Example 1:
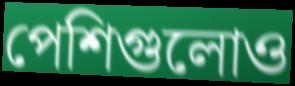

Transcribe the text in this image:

পেশিগুলোও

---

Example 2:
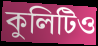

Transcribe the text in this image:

কুলিটিও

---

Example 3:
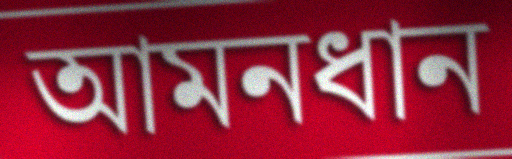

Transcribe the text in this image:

আমনধান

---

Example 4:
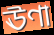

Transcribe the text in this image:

ঊণা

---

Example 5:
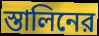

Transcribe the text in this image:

স্তালিনের